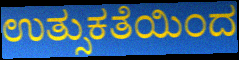
ಉತ್ಸುಕತೆಯಿಂದ